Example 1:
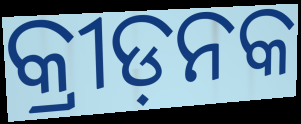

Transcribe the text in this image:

କ୍ରୀଡ଼ନକ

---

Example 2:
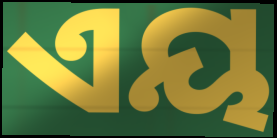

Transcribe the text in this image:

ଏୟ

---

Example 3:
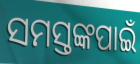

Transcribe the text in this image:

ସମସ୍ତଙ୍କପାଇଁ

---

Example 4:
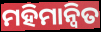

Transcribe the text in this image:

ମହିମାନ୍ୱିତ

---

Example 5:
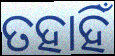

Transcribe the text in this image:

ତହାହିଁ